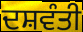
ਦਸ਼ਵੰਤੀ